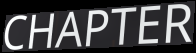
CHAPTER